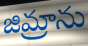
జిమ్రాను